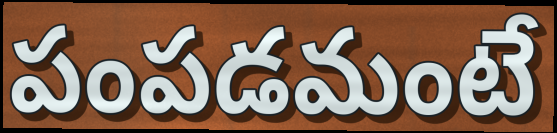
పంపడమంటే